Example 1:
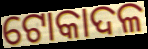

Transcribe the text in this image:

ଟୋକାଦଳ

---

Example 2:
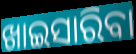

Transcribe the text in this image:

ଖାଇସାରିବା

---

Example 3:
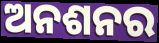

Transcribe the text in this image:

ଅନଶନର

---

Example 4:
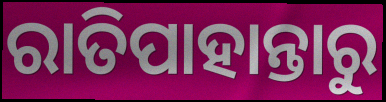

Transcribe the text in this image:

ରାତିପାହାନ୍ତାରୁ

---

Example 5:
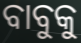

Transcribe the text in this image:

ବାବୁକୁ